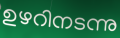
ഉഴറിനടന്നു